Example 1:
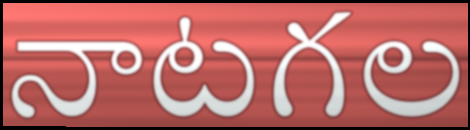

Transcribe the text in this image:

నాటగల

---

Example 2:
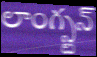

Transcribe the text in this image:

లాంగ్స్టన్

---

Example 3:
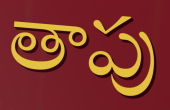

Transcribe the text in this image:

తాపు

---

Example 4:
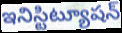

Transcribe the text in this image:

ఇనిస్టిట్యూషన్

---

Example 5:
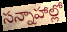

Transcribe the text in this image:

సన్నాహాల్లో